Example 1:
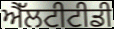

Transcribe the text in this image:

ਐੱਲਟੀਟੀਡੀ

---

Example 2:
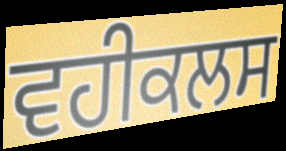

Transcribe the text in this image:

ਵਹੀਕਲਸ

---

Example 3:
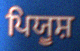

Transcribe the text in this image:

ਪਿਯੂਸ਼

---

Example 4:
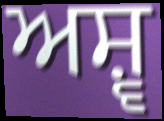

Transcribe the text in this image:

ਅਸ਼੍ਵ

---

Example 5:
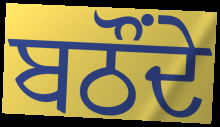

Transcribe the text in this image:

ਬਠੌਂਦੇ